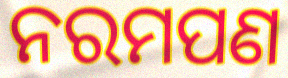
ନରମପଣ